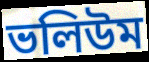
ভলিউম